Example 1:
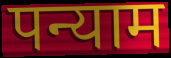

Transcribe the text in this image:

पन्याम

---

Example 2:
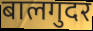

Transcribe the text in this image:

बालगुदर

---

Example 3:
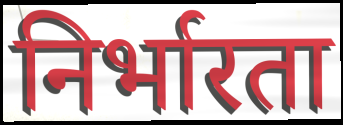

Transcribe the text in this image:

निर्भारता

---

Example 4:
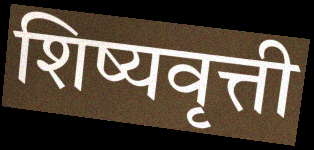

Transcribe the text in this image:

शिष्यवृत्ती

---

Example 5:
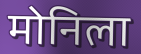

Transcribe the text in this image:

मोनिला